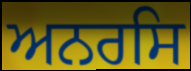
ਅਨਰਸਿ